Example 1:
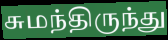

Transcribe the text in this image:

சுமந்திருந்து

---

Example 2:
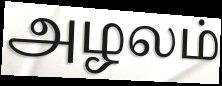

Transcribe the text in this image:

அழலம்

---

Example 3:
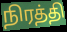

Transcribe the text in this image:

நிரத்தி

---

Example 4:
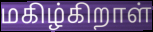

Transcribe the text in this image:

மகிழ்கிறாள்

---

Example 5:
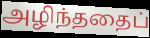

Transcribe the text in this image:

அழிந்ததைப்